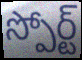
స్పోర్ట్